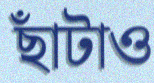
ছাঁটাও